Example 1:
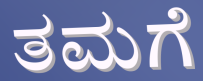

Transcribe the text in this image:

ತಮಗೆ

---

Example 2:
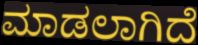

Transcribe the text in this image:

ಮಾಡಲಾಗಿದೆ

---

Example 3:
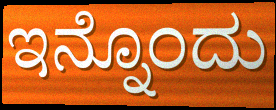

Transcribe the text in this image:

ಇನ್ನೊಂದು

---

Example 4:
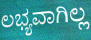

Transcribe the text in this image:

ಲಭ್ಯವಾಗಿಲ್ಲ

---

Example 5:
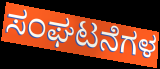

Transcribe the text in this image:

ಸಂಘಟನೆಗಳ